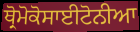
ਥ੍ਰੋਮੋਕੋਸਾਈਟੋਨੀਆ